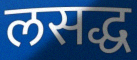
लसद्ध